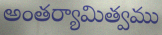
అంతర్యామిత్వము